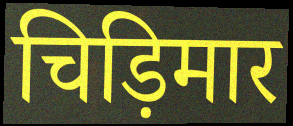
चिड़िमार